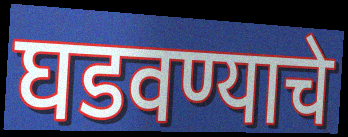
घडवण्याचे